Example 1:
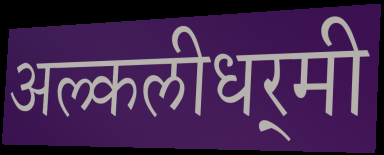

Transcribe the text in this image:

अल्कलीधर्मी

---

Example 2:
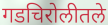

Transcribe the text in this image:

गडचिरोलीतले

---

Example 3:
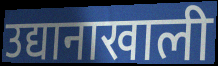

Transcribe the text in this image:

उद्यानाखाली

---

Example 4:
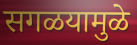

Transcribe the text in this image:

सगळयामुळे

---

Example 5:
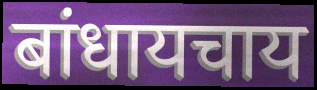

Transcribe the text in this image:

बांधायचाय